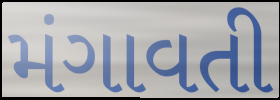
મંગાવતી